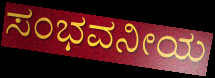
ಸಂಭವನೀಯ